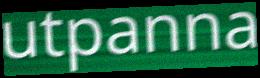
utpanna